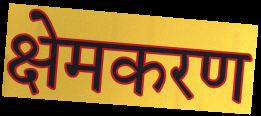
क्षेमकरण